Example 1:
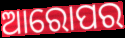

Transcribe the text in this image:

ଆରୋପର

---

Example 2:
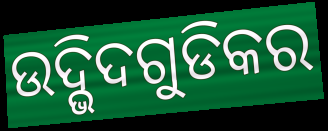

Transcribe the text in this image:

ଉଦ୍ଭିଦଗୁଡିକର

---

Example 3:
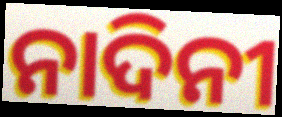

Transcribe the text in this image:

ନାଦିନୀ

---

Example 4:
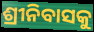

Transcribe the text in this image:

ଶ୍ରୀନିବାସକୁ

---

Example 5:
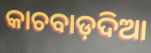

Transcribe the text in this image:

କାଚବାଡ଼ଦିଆ